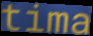
tima